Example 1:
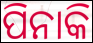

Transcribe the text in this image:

ପିନାକି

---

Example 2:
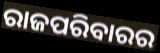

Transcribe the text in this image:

ରାଜପରିବାରର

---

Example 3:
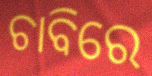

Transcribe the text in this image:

ଚାବିରେ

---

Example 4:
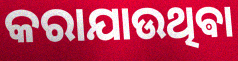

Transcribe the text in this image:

କରାଯାଉଥିଵା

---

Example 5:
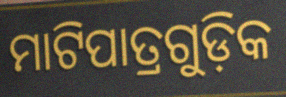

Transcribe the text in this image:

ମାଟିପାତ୍ରଗୁଡ଼ିକ